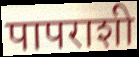
पापराशी